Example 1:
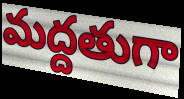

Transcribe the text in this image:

మద్దతుగా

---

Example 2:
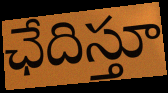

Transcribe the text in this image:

ఛేదిస్తూ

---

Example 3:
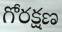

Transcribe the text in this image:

గోరక్షణ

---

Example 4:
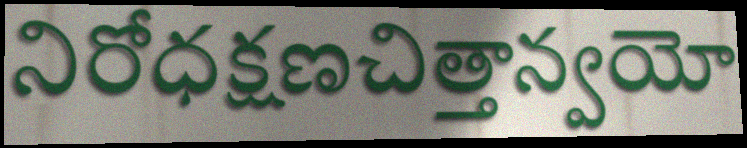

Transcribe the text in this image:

నిరోధక్షణచిత్తాన్వయో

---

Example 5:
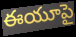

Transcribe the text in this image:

ఈయూపై